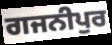
ਗਜਨੀਪੁਰ